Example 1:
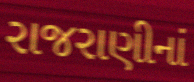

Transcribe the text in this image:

રાજરાણીનાં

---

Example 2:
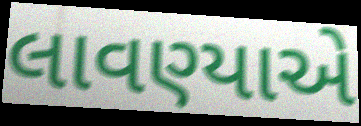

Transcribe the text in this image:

લાવણ્યાએ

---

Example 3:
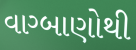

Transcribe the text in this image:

વાગ્બાણોથી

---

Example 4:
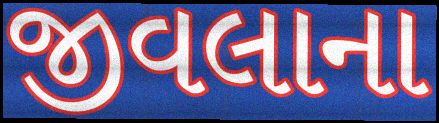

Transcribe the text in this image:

જીવલાના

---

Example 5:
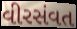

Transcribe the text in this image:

વીરસંવત